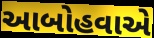
આબોહવાએ